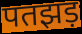
पतझड़